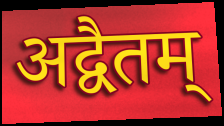
अद्वैतम्